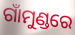
ଗାଁମୁଣ୍ଡରେ